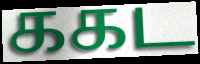
ககட